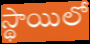
స్థాయిలో